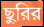
ছুরির